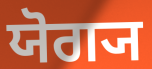
ਯੋਗ੍ਯ